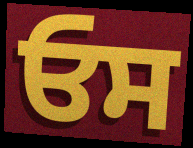
ਓਸ